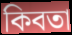
কিবতা